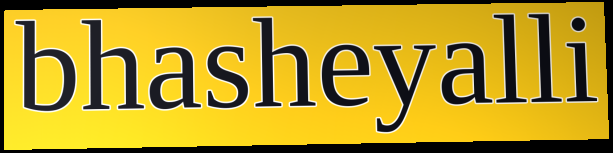
bhasheyalli